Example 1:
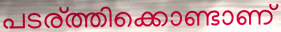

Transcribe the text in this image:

പടര്ത്തിക്കൊണ്ടാണ്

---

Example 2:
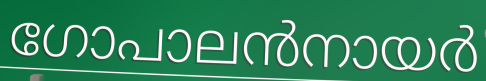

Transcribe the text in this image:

ഗോപാലൻനായർ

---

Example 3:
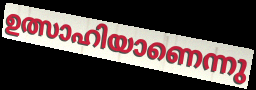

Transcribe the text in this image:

ഉത്സാഹിയാണെന്നു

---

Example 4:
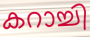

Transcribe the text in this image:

കറാച്ചി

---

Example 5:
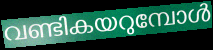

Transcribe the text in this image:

വണ്ടികയറുമ്പോൾ